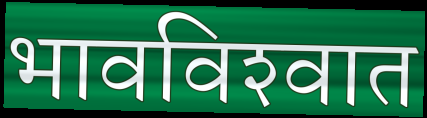
भावविश्वात